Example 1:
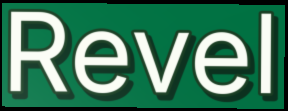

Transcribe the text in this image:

Revel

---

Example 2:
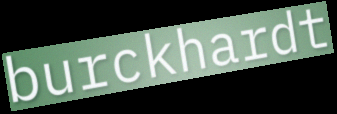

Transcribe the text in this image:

burckhardt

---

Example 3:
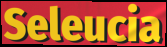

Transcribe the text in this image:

Seleucia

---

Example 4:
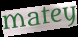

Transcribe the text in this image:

matey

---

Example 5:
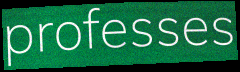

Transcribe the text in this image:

professes